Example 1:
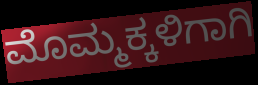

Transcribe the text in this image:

ಮೊಮ್ಮಕ್ಕಳಿಗಾಗಿ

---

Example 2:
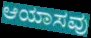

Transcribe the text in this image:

ಆಯಾಸವು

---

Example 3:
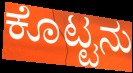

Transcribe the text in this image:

ಕೊಟ್ಟನು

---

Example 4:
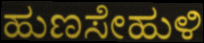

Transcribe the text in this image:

ಹುಣಸೇಹುಳಿ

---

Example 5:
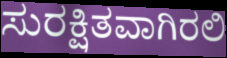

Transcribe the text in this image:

ಸುರಕ್ಷಿತವಾಗಿರಲಿ